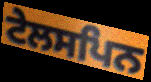
ਟੇਲਸਪਿਨ